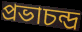
প্রভাচন্দ্র